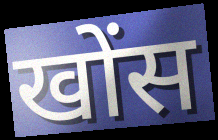
खोंस